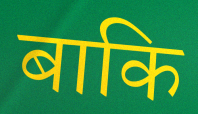
बाकि